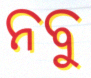
ନବୁ